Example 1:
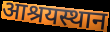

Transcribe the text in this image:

आश्रयस्थान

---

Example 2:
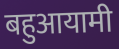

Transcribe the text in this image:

बहुआयामी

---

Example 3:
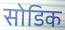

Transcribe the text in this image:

सोडिक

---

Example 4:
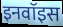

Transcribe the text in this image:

इनवॉइस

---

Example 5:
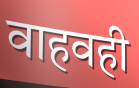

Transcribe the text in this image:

वाहवही